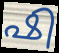
ഷി